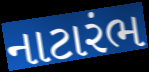
નાટારંભ